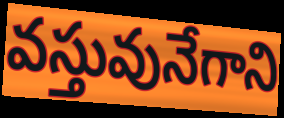
వస్తువునేగాని